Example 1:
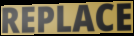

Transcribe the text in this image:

REPLACE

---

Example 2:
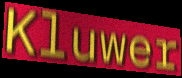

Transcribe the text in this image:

Kluwer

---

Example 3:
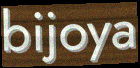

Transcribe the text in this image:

bijoya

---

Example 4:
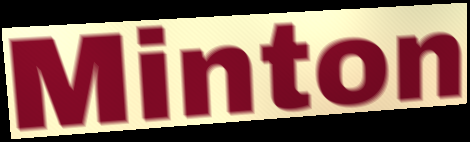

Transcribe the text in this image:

Minton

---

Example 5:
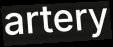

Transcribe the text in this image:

artery